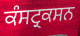
ਕੰਸਟ੍ਰਕਸਨ